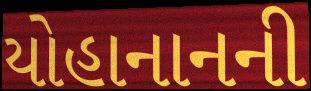
યોહાનાનની